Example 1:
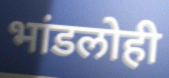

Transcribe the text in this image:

भांडलोही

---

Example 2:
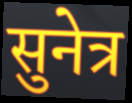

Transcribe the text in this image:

सुनेत्र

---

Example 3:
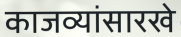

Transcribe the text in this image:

काजव्यांसारखे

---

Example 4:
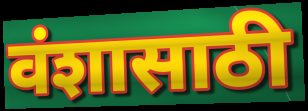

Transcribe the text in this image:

वंशासाठी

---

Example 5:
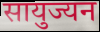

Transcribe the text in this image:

सायुज्यन